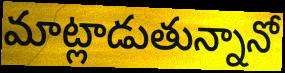
మాట్లాడుతున్నానో